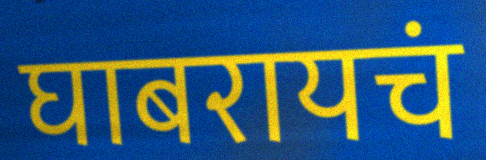
घाबरायचं